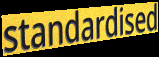
standardised